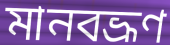
মানবভ্রূণ